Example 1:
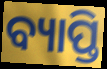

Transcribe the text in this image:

ବ୍ୟାପ୍ତି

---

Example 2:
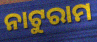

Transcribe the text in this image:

ନାଟୁରାମ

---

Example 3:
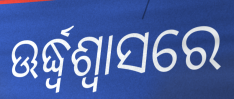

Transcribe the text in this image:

ଊର୍ଦ୍ଧ୍ୱଶ୍ୱାସରେ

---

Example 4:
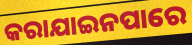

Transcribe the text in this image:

କରାଯାଇନପାରେ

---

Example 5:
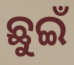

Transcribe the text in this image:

ଛୁଇଁ